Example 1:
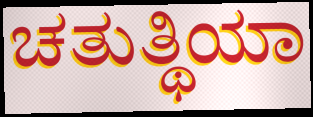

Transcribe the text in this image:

ಚತುತ್ಥಿಯಾ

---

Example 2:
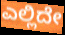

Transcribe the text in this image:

ಎಲ್ಲಿದೇ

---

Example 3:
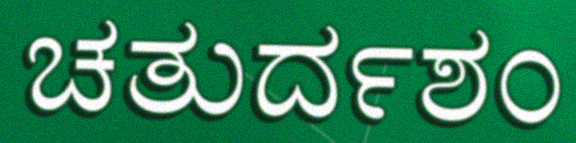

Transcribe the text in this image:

ಚತುರ್ದಶಂ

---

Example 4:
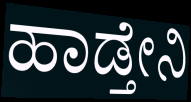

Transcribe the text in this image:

ಹಾಡ್ತೇನಿ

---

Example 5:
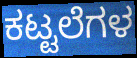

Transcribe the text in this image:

ಕಟ್ಟಲೆಗಳ